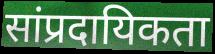
सांप्रदायिकता